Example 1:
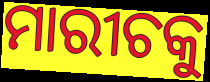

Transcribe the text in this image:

ମାରୀଚକୁ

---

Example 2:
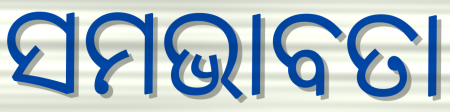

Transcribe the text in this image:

ସମଭାବତା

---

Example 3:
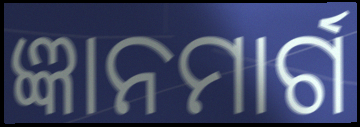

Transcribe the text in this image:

ଜ୍ଞାନମାର୍ଗ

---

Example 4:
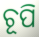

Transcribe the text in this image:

ଚୂପି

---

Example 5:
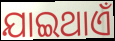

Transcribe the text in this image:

ଯାଇଥାଏଁ